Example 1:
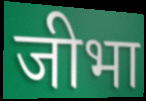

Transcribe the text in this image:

जीभा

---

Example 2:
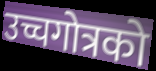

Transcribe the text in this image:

उच्चगोत्रको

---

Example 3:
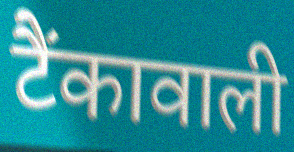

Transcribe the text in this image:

टैंकावाली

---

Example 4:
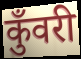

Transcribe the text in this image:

कुँवरी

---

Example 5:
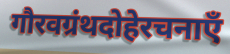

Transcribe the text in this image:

गौरवग्रंथदोहेरचनाएँ